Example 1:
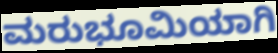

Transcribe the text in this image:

ಮರುಭೂಮಿಯಾಗಿ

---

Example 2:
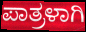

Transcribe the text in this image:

ಪಾತ್ರಳಾಗಿ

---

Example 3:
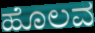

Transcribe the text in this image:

ಹೊಲವ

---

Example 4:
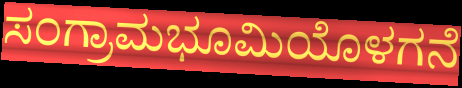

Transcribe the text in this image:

ಸಂಗ್ರಾಮಭೂಮಿಯೊಳಗನೆ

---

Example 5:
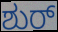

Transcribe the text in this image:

ಶುರ್